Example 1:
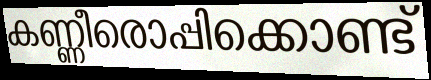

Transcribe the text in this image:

കണ്ണീരൊപ്പിക്കൊണ്ട്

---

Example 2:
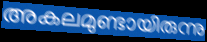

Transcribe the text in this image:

അകലമുണ്ടായിരുന്നു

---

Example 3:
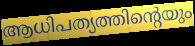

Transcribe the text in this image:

ആധിപത്യത്തിന്റെയും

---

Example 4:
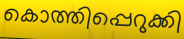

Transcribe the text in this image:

കൊത്തിപ്പെറുക്കി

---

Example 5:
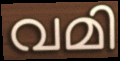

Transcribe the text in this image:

വമി